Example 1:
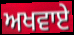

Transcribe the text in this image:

ਅਖਵਾਏ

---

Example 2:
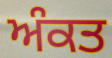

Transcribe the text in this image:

ਅੰਕਤ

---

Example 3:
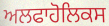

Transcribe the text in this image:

ਅਲਫਾਹੋਲਿਕਸ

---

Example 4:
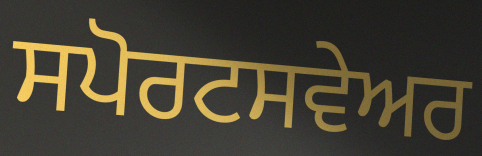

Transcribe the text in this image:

ਸਪੋਰਟਸਵੇਅਰ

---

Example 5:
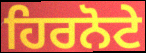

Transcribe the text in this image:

ਹਿਰਨੋਟੇ